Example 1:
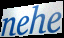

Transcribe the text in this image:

nehe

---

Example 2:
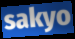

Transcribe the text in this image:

sakyo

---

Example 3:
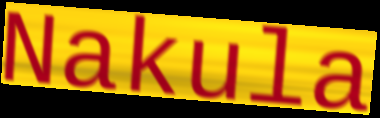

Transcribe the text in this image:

Nakula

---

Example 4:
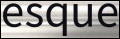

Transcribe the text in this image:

esque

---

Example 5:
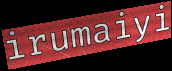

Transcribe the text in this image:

irumaiyi